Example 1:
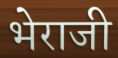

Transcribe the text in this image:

भेराजी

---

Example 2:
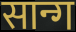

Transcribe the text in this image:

सान्ग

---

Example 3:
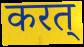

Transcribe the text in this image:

करत्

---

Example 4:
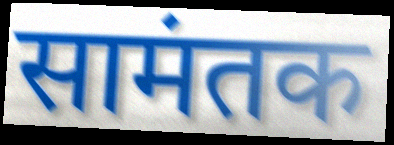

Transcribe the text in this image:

सामंतक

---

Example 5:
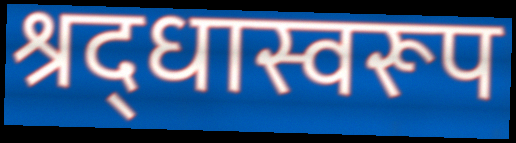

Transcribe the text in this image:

श्रद्धास्वरूप